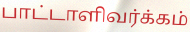
பாட்டாளிவர்க்கம்